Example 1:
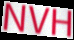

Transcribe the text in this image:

NVH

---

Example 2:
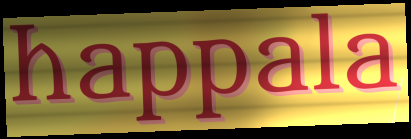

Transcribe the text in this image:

happala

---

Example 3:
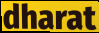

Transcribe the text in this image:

dharat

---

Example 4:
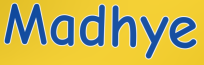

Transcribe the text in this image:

Madhye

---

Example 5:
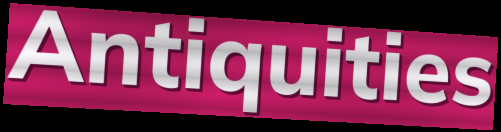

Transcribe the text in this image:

Antiquities